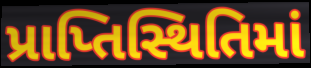
પ્રાપ્તિસ્થિતિમાં